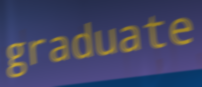
graduate